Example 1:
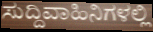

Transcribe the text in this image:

ಸುದ್ದಿವಾಹಿನಿಗಳಲ್ಲಿ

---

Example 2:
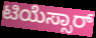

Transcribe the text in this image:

ಟಿಯೆಸ್ಸಾರ್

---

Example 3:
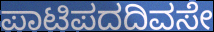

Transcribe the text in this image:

ಪಾಟಿಪದದಿವಸೇ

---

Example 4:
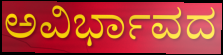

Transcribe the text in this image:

ಅವಿರ್ಭಾವದ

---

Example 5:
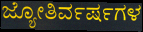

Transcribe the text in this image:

ಜ್ಯೋತಿರ್ವರ್ಷಗಳ